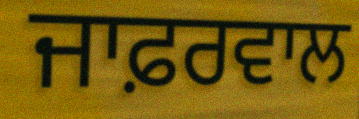
ਜਾਫ਼ਰਵਾਲ